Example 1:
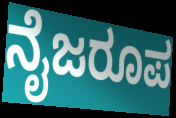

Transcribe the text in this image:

ನೈಜರೂಪ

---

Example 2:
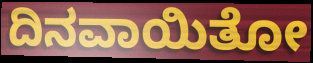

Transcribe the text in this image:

ದಿನವಾಯಿತೋ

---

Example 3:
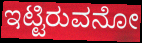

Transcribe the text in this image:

ಇಟ್ಟಿರುವನೋ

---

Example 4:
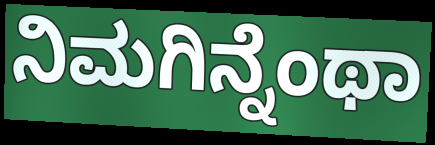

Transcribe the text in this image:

ನಿಮಗಿನ್ನೆಂಥಾ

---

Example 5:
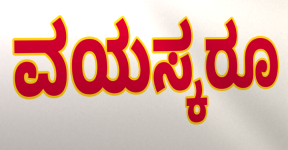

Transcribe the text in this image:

ವಯಸ್ಕರೂ